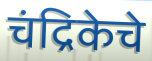
चंद्रिकेचे